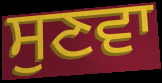
ਸੁਣਵਾ